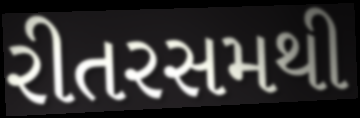
રીતરસમથી